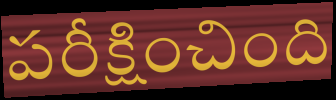
పరీక్షించింది